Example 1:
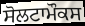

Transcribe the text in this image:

ਸੋਲਟਾਮੌਕਸ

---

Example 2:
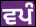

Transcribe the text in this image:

ਵਪੰ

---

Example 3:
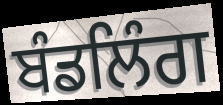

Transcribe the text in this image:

ਬੰਡਲਿੰਗ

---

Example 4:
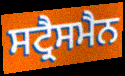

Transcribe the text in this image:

ਸਟ੍ਰੈਸਮੈਨ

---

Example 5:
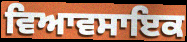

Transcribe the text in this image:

ਵਿਆਵਸਾਇਕ